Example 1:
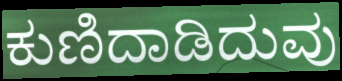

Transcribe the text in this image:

ಕುಣಿದಾಡಿದುವು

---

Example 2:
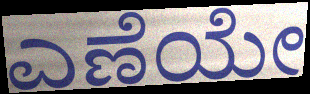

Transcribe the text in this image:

ಎಣೆಯೇ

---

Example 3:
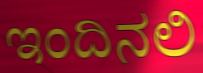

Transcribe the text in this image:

ಇಂದಿನಲಿ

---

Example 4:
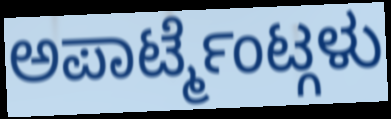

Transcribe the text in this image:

ಅಪಾರ್ಟ್ಮೆಂಟ್ಗಳು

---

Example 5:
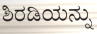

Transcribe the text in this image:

ಶಿರಡಿಯನ್ನು